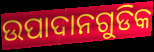
ଉପାଦାନଗୁଡିକ